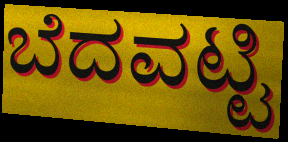
ಬೆದವಟ್ಟಿ